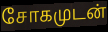
சோகமுடன்